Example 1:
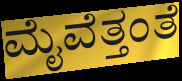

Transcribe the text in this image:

ಮೈವೆತ್ತಂತೆ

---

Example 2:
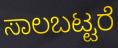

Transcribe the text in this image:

ಸಾಲಬಟ್ಟರೆ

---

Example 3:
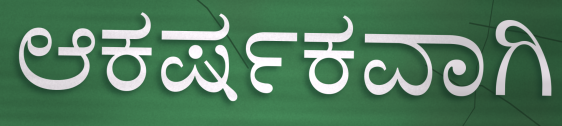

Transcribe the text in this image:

ಆಕರ್ಷಕವಾಗಿ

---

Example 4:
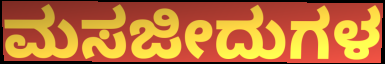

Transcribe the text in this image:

ಮಸಜೀದುಗಳ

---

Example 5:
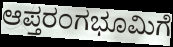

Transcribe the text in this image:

ಆಪ್ತರಂಗಭೂಮಿಗೆ